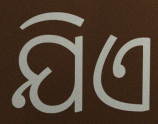
ଯିଏ